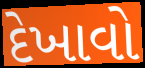
દેખાવો